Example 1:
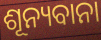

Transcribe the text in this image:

ଶୂନ୍ୟବାନା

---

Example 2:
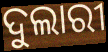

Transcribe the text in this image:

ଦୁଲାରୀ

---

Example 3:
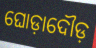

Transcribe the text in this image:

ଘୋଡ଼ାଦୌଡ଼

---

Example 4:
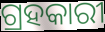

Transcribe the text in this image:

ଗ୍ରହକାରୀ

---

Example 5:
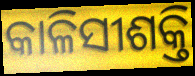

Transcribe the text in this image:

କାଳିସୀଶକ୍ତି